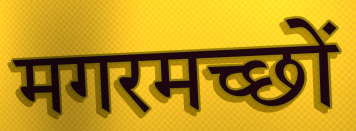
मगरमच्छों